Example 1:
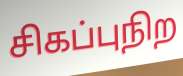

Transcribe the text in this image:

சிகப்புநிற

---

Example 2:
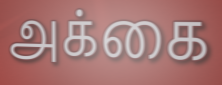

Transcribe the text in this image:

அக்கை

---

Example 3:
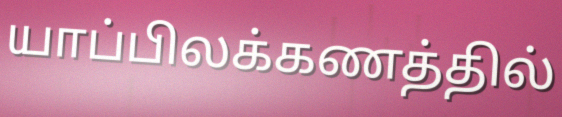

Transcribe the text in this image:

யாப்பிலக்கணத்தில்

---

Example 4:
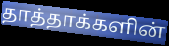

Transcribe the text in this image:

தாத்தாக்களின்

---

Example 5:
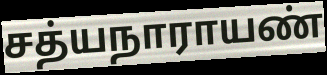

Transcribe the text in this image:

சத்யநாராயண்